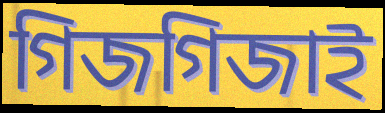
গিজগিজাই